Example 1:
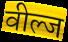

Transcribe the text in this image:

वील्ज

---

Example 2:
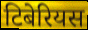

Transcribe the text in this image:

टिबेरियस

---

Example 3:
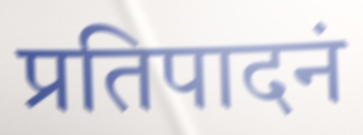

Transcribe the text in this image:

प्रतिपादनं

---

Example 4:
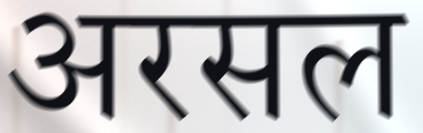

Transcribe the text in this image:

अरसल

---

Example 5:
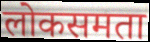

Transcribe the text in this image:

लोकसमता